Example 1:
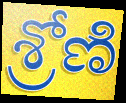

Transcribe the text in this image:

శ్రోణి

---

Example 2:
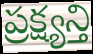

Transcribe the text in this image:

ప్రక్ష్యన్తి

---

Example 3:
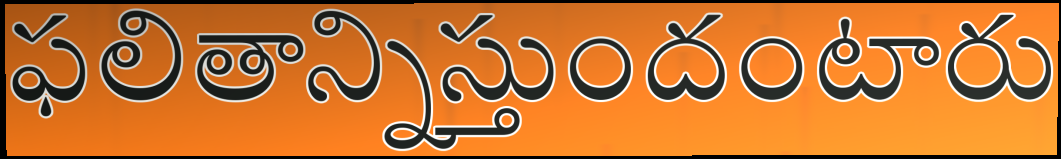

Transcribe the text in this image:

ఫలితాన్నిస్తుందంటారు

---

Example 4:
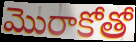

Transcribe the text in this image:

మొరాకోతో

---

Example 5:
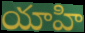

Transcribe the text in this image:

యాహి